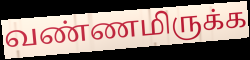
வண்ணமிருக்க